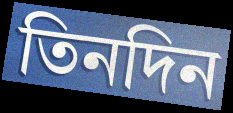
তিনদিন